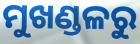
ମୁଖଣ୍ଡଳରୁ